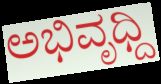
ಅಭಿವೃಧ್ದಿ